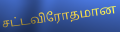
சட்டவிரோதமான